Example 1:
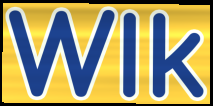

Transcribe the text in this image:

Wlk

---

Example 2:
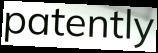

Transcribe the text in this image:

patently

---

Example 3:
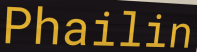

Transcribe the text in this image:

Phailin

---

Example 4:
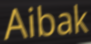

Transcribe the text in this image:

Aibak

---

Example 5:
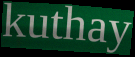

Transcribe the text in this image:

kuthay